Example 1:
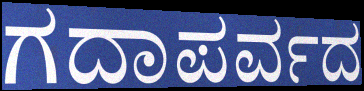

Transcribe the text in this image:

ಗದಾಪರ್ವದ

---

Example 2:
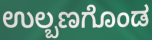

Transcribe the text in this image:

ಉಲ್ಬಣಗೊಂಡ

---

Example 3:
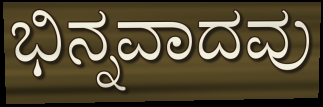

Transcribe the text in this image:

ಭಿನ್ನವಾದವು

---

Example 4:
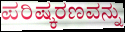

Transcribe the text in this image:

ಪರಿಷ್ಕರಣವನ್ನು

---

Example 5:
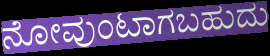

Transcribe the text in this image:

ನೋವುಂಟಾಗಬಹುದು